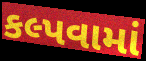
કલ્પવામાં